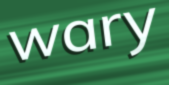
wary